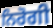
ਨਿਰੋਗੀ